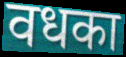
वधका